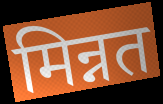
मिन्नत